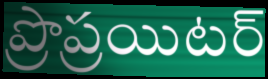
ప్రొప్రయిటర్